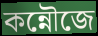
কন্নৌজে